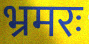
भ्रमरः